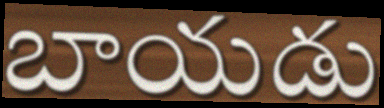
బాయడు